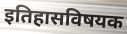
इतिहासविषयक